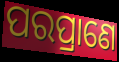
ପରପ୍ରାଣେ